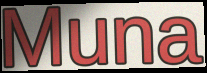
Muna